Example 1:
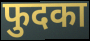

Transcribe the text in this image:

फुदका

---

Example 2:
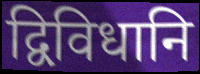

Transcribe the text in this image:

द्विविधानि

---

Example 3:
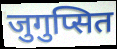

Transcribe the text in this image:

जुगुप्सित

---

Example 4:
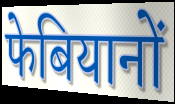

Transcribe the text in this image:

फेबियानों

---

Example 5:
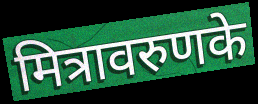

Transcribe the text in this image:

मित्रावरुणके